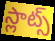
స్లాట్స్